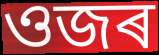
ওজৰ